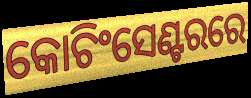
କୋଚିଂସେଣ୍ଟରରେ